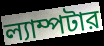
ল্যাম্পটার